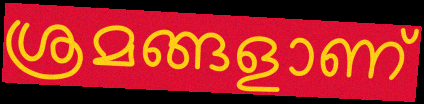
ശ്രമങ്ങളാണ്